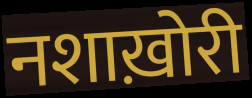
नशाख़ोरी